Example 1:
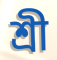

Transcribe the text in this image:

শ্রী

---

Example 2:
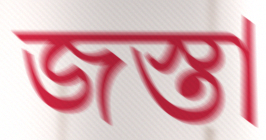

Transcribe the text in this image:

জস্তা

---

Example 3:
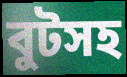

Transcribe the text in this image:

বুটসহ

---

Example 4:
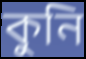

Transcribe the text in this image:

কুনি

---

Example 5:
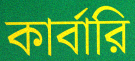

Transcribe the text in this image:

কার্বারি